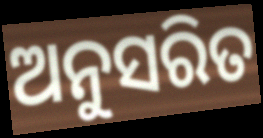
ଅନୁସରିତ